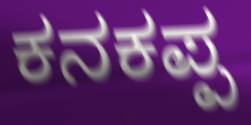
ಕನಕಪ್ಪ